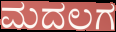
ಮದಲಗ